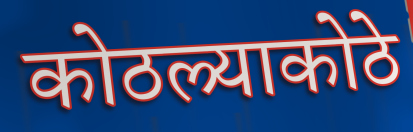
कोठल्याकोठे